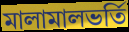
মালামালভর্তি